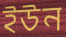
ইউন